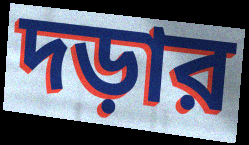
দড়ার